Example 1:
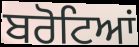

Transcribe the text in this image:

ਬਰੋਟਿਆਂ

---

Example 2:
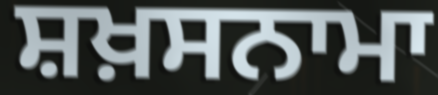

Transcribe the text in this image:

ਸ਼ਖ਼ਸਨਾਮਾ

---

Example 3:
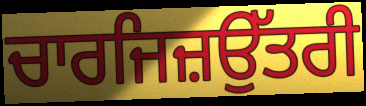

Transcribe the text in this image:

ਚਾਰਜਿਜ਼ਉੱਤਰੀ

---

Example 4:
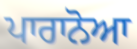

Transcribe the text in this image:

ਪਾਰਾਨੋਆ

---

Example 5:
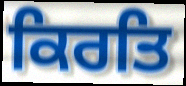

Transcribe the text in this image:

ਕਿਰਤਿ